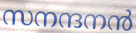
സനന്ദനൻ